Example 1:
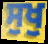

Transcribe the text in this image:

ਸੁਖੁ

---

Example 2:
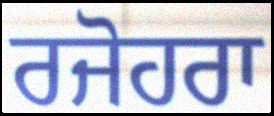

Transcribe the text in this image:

ਰਜੋਹਰਾ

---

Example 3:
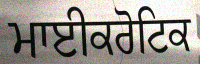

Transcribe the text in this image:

ਮਾਈਕਰੋਟਿਕ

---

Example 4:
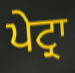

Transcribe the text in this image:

ਪੇਟ੍ਰਾ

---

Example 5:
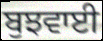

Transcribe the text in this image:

ਬੁਝਵਾਈ